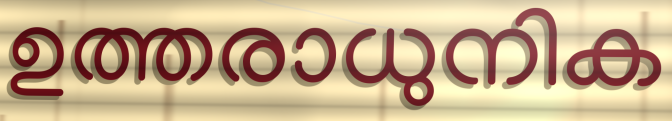
ഉത്തരാധുനിക